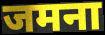
जमना